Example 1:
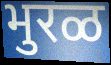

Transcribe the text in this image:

भुरळ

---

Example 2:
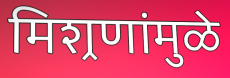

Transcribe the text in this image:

मिश्रणांमुळे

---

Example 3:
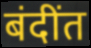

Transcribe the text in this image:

बंदींत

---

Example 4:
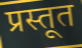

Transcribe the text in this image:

प्रस्तूत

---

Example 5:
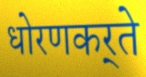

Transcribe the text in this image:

धोरणकर्ते